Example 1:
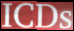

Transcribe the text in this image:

ICDs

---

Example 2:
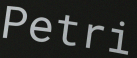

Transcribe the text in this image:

Petri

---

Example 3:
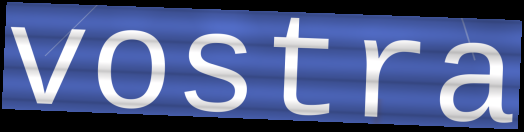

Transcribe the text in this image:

vostra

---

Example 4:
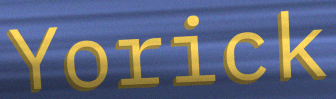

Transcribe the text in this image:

Yorick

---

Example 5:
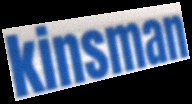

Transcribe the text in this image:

kinsman